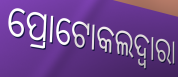
ପ୍ରୋଟୋକଲଦ୍ୱାରା